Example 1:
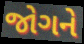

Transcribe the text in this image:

જોગને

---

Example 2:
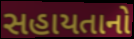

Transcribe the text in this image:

સહાયતાનો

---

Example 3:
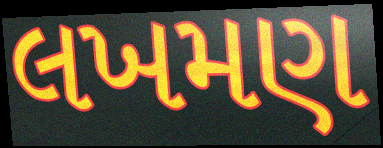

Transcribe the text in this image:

લખમણ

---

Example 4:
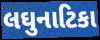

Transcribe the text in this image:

લઘુનાટિકા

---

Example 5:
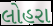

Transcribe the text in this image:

લોહરા